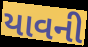
યાવની